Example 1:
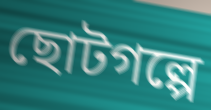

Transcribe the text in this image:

ছোটগল্পে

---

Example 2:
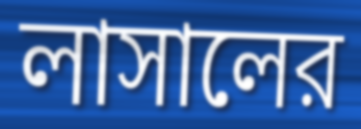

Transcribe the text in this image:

লাসালের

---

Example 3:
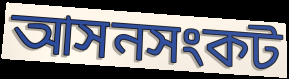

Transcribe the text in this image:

আসনসংকট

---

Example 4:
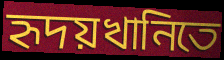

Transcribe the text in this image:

হৃদয়খানিতে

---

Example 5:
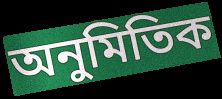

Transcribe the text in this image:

অনুমিতিক